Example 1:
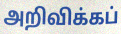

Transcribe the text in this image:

அறிவிக்கப்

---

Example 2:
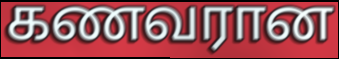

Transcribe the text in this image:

கணவரான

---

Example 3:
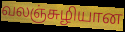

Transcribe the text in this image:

வலஞ்சுழியான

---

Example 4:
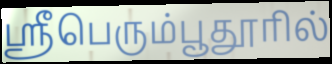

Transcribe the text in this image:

ஸ்ரீபெரும்பூதூரில்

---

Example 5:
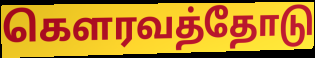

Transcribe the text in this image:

கௌரவத்தோடு